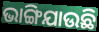
ଭାଙ୍ଗିଯାଉଛି